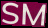
SM